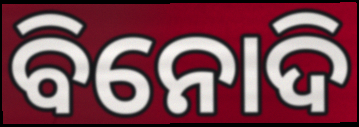
ବିନୋଦି